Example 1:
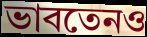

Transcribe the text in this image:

ভাবতেনও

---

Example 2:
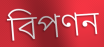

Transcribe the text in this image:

বিপণন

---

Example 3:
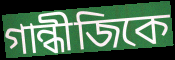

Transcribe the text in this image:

গান্ধীজিকে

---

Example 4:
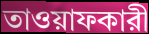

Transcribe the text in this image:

তাওয়াফকারী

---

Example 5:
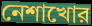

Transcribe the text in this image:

নেশাখোর